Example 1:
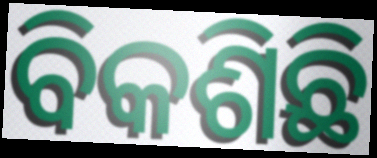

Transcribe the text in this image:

ବିକଶିଛି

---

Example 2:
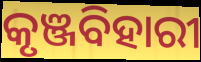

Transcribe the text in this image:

କୃଞ୍ଜବିହାରୀ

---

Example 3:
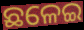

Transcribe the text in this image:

ଛଳେଇ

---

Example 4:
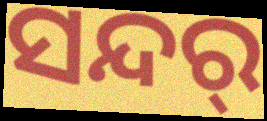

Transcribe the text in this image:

ସନ୍ଦର୍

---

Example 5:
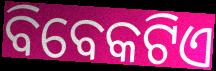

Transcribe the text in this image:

ବିବେକଟିଏ